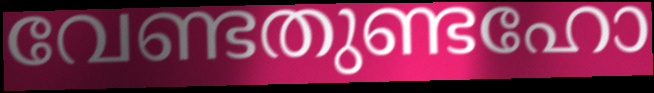
വേണ്ടതുണ്ടഹോ